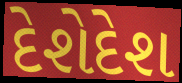
દેશેદેશ